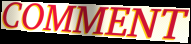
COMMENT